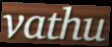
vathu